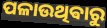
ପଳାଉଥିଵାରୁ